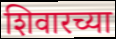
शिवारच्या